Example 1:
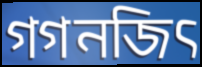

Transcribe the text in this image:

গগনজিৎ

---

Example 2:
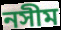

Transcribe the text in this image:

নসীম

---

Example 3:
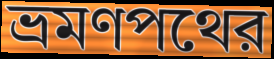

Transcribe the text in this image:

ভ্রমণপথের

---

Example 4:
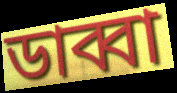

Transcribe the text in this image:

ডাব্বা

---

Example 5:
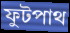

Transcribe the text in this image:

ফুটপাথ